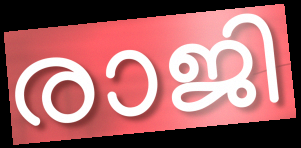
രാജി